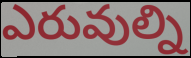
ఎరువుల్ని